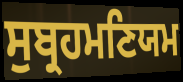
ਸੁਬ੍ਰਹਮਣਿਯਮ